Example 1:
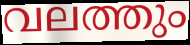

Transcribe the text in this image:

വലത്തും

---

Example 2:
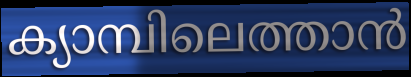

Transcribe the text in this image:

ക്യാമ്പിലെത്താൻ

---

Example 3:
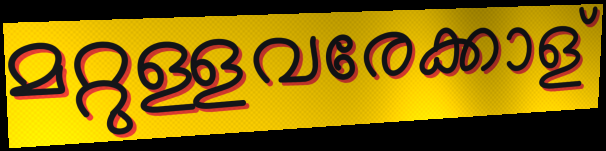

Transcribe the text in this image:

മറ്റുള്ളവരേക്കാള്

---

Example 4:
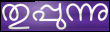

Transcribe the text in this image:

തുപ്പുന്നു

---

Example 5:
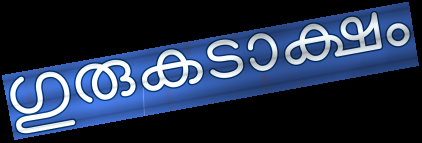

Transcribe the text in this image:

ഗുരുകടാക്ഷം